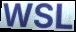
WSL